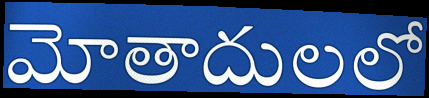
మోతాదులలో